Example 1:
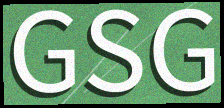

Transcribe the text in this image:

GSG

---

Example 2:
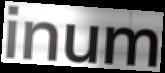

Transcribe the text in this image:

inum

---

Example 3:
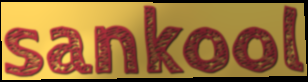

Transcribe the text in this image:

sankool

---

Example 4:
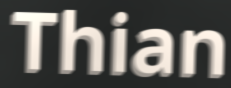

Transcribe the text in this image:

Thian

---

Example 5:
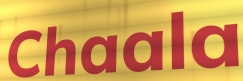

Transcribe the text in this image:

Chaala